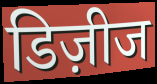
डिज़ीज